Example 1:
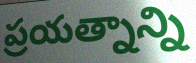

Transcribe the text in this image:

ప్రయత్నాన్ని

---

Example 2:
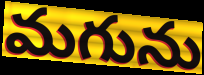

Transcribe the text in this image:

మగును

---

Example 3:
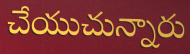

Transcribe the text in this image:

చేయుచున్నారు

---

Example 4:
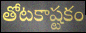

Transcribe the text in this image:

తోటకాష్టకం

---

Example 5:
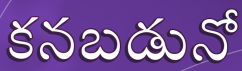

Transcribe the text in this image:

కనబడునో